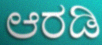
ಆರಡಿ